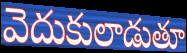
వెదుకులాడుతూ